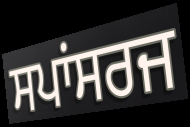
ਸਪਾਂਸਰਜ